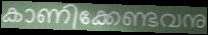
കാണിക്കേണ്ടവനു